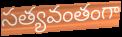
సత్యవంతంగా